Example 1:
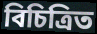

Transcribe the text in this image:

বিচিত্রিত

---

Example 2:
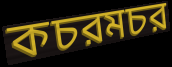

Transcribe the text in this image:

কচরমচর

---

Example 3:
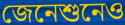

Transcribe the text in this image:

জেনেশুনেও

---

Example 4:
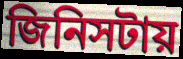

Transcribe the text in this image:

জিনিসটায়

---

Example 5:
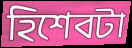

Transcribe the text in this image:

হিশেবটা